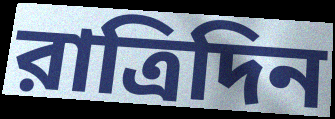
রাত্রিদিন